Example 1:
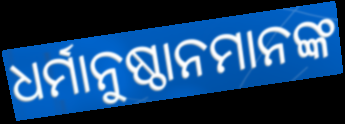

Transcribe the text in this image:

ଧର୍ମାନୁଷ୍ଠାନମାନଙ୍କ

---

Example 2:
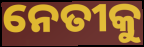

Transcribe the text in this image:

ନେତୀକୁ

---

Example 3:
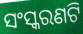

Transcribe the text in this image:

ସଂସ୍କରଣଟି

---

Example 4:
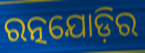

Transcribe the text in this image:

ରତ୍ନଯୋଡ଼ିର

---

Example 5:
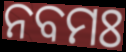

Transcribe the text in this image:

ନବମଃ